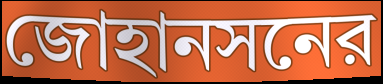
জোহানসনের